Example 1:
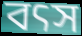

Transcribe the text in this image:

বৎস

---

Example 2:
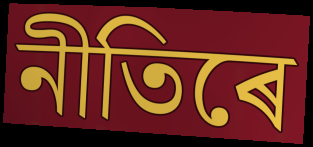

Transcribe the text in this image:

নীতিৰে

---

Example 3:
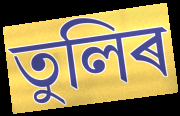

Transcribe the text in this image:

তুলিৰ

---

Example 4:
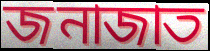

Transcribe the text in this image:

জনাজাত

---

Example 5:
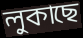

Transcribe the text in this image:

লুকাছে